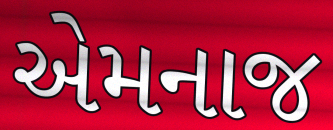
એમનાજ